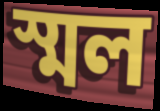
স্মল